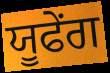
ਯੂਫੇਂਗ